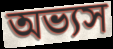
অভ্যস